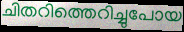
ചിതറിത്തെറിച്ചുപോയ